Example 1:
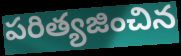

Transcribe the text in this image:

పరిత్యజించిన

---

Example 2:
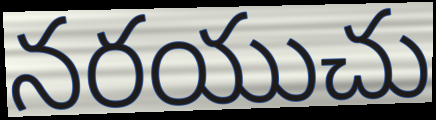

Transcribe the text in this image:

నరయుచు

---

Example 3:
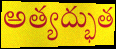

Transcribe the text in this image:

అత్యద్భుత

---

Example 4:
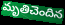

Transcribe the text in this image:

మృతిచెందిన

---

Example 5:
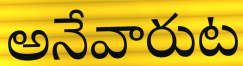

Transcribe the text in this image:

అనేవారుట